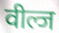
वील्ज